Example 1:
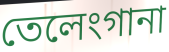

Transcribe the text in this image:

তেলেংগানা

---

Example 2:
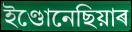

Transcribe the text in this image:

ইণ্ডোনেছিয়াৰ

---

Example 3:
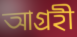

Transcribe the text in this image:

আগ্ৰহী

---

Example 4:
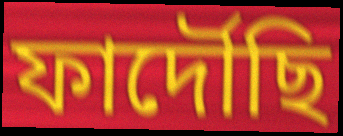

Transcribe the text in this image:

ফাৰ্দৌছি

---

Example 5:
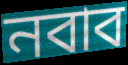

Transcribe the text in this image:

নবাব